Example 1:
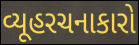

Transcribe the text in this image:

વ્યૂહરચનાકારો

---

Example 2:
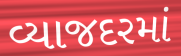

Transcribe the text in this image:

વ્યાજદરમાં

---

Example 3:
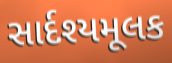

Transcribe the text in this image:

સાર્દશ્યમૂલક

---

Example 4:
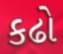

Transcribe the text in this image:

કઢો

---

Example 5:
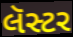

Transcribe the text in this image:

લૅસ્ટર